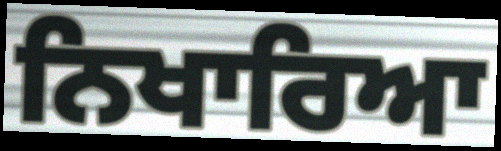
ਨਿਖਾਰਿਆ